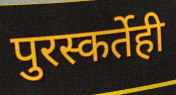
पुरस्कर्तेही